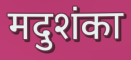
मदुशंका